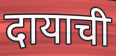
दायाची